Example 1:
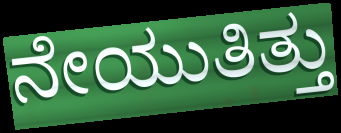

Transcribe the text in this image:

ನೇಯುತಿತ್ತು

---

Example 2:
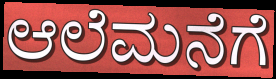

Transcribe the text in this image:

ಆಲೆಮನೆಗೆ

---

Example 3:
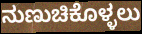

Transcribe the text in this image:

ನುಣುಚಿಕೊಳ್ಳಲು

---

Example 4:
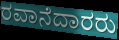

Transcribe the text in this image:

ರವಾನೆದಾರರು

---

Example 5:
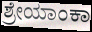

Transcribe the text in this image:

ಶ್ರೇಯಾಂಕಾ